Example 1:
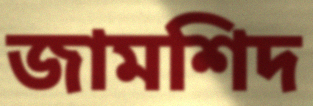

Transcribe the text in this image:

জামশিদ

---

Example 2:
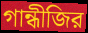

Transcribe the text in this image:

গান্ধীজির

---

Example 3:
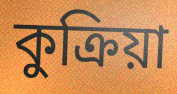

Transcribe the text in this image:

কুক্রিয়া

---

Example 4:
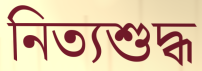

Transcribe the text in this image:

নিত্যশুদ্ধ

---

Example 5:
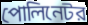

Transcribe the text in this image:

পোলিনেটর